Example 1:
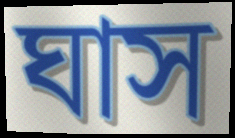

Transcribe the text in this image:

ঘাস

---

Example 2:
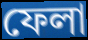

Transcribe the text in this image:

ফেলা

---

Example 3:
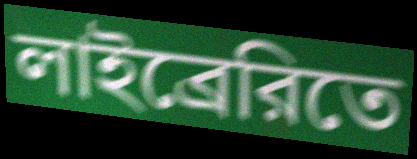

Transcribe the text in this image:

লাইব্রেরিতে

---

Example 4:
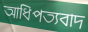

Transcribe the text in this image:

আধিপত্যবাদ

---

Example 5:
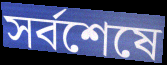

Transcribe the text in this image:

সর্বশেষে